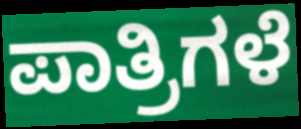
ಪಾತ್ರಿಗಳೆ